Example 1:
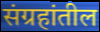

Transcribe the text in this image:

संग्रहांतील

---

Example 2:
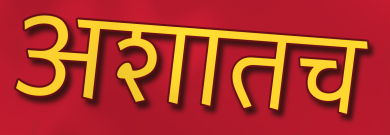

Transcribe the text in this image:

अशातच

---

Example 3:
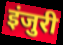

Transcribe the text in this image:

इंजुरी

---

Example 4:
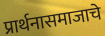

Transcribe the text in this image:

प्रार्थनासमाजाचे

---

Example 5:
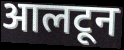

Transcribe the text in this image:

आलटून